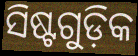
ସିଷ୍ଟଗୁଡ଼ିକ